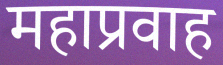
महाप्रवाह